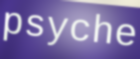
psyche